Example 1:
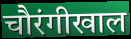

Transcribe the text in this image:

चौरंगीखाल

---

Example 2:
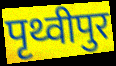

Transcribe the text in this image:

पृथ्वीपुर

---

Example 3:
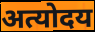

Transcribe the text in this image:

अत्योदय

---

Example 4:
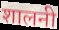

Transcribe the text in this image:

शालनी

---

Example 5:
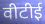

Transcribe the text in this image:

वीटीई